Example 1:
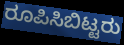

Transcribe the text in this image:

ರೂಪಿಸಿಬಿಟ್ಟರು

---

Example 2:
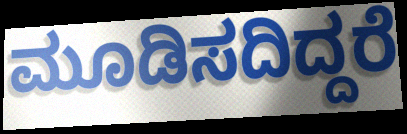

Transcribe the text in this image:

ಮೂಡಿಸದಿದ್ದರೆ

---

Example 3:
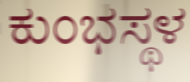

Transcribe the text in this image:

ಕುಂಭಸ್ಥಳ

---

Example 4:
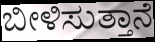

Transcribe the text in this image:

ಬೀಳಿಸುತ್ತಾನೆ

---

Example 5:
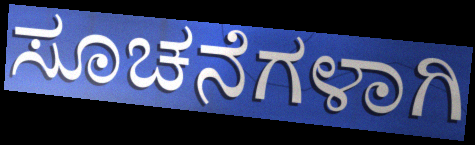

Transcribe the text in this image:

ಸೂಚನೆಗಳಾಗಿ